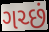
ગચ્છં